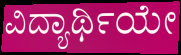
ವಿದ್ಯಾರ್ಥಿಯೇ